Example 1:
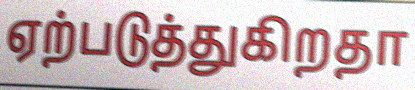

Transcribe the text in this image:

ஏற்படுத்துகிறதா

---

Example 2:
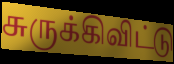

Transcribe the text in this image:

சுருக்கிவிட்டு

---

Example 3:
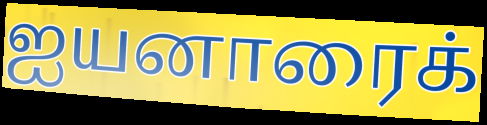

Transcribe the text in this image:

ஐயனாரைக்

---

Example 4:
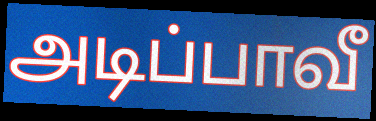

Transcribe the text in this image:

அடிப்பாவீ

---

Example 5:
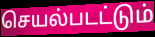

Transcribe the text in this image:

செயல்படட்டும்